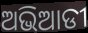
ଅଭିଆଡୀ